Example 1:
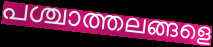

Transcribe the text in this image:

പശ്ചാത്തലങ്ങളെ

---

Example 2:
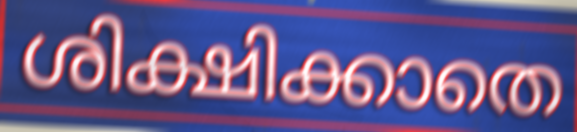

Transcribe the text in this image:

ശിക്ഷിക്കാതെ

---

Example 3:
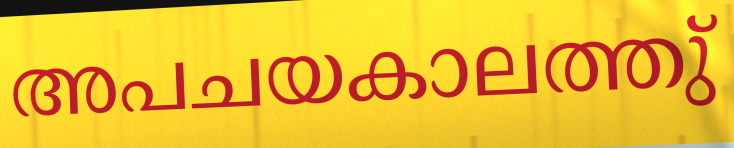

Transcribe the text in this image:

അപചയകാലത്തു്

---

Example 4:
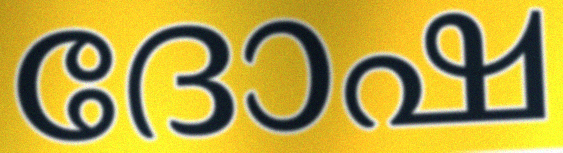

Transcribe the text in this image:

ദോഷ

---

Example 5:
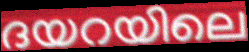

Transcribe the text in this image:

ദയറയിലെ